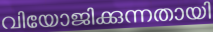
വിയോജിക്കുന്നതായി